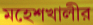
মহেশখালীর